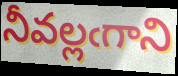
నీవల్లఁగాని